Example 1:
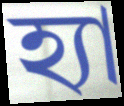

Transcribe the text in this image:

হ্যা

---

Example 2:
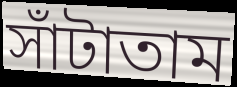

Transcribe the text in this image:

সাঁটাতাম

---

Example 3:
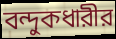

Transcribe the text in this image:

বন্দুকধারীর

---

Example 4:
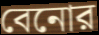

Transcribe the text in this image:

বেনোর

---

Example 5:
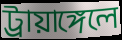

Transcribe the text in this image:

ট্রায়াঙ্গেলে